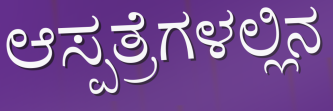
ಆಸ್ಪತ್ರೆಗಳಲ್ಲಿನ